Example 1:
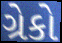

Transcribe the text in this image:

ગ્રેકો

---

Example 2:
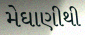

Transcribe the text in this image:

મેઘાણીથી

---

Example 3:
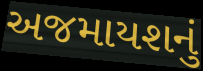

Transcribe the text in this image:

અજમાયશનું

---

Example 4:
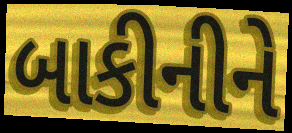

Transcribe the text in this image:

બાકીનીને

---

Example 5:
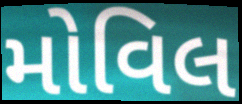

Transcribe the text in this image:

મોવિલ